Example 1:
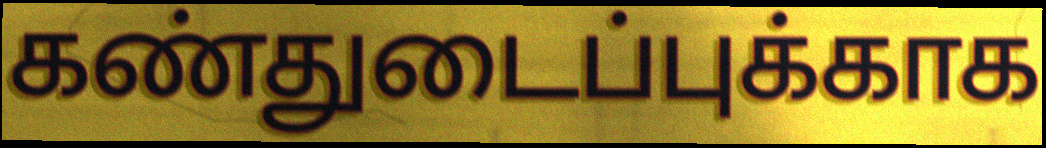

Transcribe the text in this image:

கண்துடைப்புக்காக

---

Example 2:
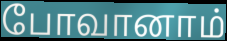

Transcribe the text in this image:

போவானாம்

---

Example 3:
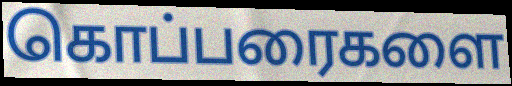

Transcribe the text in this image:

கொப்பரைகளை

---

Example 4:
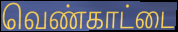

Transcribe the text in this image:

வெண்காட்டை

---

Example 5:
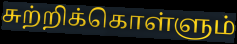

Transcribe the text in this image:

சுற்றிக்கொள்ளும்